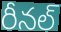
రీనల్